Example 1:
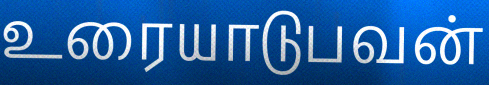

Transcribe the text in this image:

உரையாடுபவன்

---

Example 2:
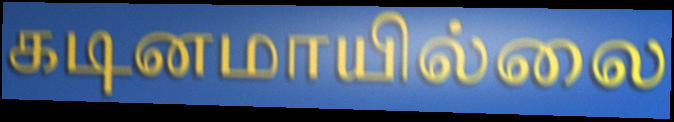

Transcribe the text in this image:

கடினமாயில்லை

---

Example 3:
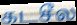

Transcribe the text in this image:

கடசீல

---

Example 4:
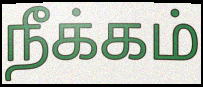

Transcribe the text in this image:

நீக்கம்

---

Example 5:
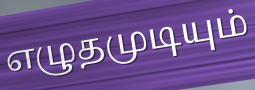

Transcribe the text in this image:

எழுதமுடியும்